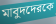
মাবুদদেরকে